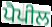
ਪੈਪੀਲ